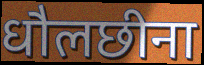
धौलछीना